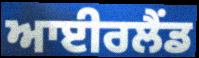
ਆਈਰਲੈਂਡ